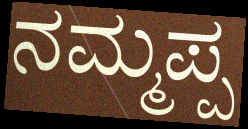
ನಮ್ಮಪ್ಪ